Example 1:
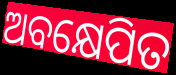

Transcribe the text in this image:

ଅବକ୍ଷେପିତ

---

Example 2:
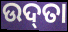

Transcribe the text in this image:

ଉଦ୍‌ତା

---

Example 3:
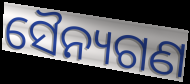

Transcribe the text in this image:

ସୈନ୍ୟଗଣ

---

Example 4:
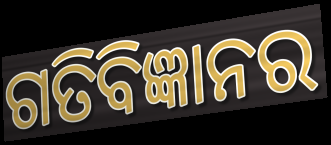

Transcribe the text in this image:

ଗତିବିଜ୍ଞାନର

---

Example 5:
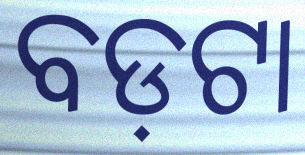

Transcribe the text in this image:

ବଡ଼ଟା